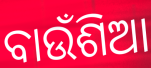
ବାଉଁଶିଆ